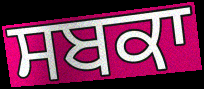
ਸਬਕਾ